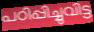
പഠിപ്പിച്ചുവിട്ട